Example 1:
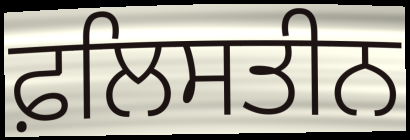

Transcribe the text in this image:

ਫ਼ਲਿਸਤੀਨ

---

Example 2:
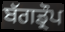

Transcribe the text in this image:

ਬੱਗਡ੍ਰੌਪ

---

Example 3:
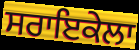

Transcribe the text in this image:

ਸਰਾਇਕੇਲਾ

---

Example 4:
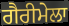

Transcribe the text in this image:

ਗੈਰੀਮੇਲਾ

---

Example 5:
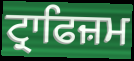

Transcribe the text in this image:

ਟ੍ਰਾਫਿਜ਼ਮ